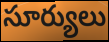
సూర్యులు